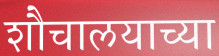
शौचालयाच्या